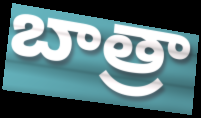
బాత్రా